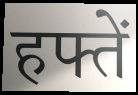
हफ्तें